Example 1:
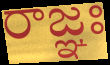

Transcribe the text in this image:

రాజ్ఞః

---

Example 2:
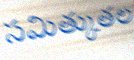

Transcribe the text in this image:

సమిత్కుతల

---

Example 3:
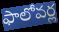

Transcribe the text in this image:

ఫాలోవర్ల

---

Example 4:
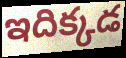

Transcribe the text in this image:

ఇదిక్కడ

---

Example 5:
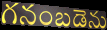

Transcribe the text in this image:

గనంబడెను